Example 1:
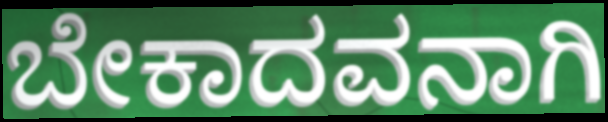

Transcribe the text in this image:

ಬೇಕಾದವನಾಗಿ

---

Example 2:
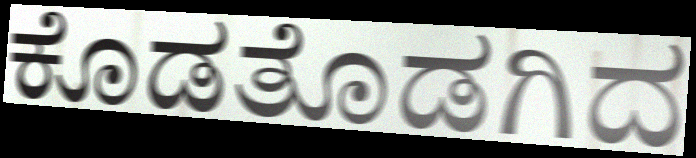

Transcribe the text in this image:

ಕೊಡತೊಡಗಿದ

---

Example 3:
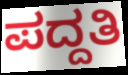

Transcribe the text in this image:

ಪದ್ದತಿ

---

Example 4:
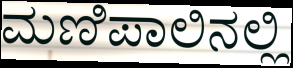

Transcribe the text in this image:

ಮಣಿಪಾಲಿನಲ್ಲಿ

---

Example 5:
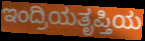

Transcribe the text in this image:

ಇಂದ್ರಿಯತೃಪ್ತಿಯ